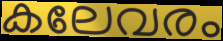
കലേവരം